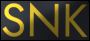
SNK